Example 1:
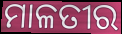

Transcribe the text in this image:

ମାଳତୀର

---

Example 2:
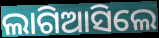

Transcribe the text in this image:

ଲାଗିଆସିଲେ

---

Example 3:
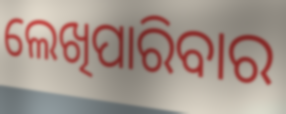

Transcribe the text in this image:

ଲେଖିପାରିବାର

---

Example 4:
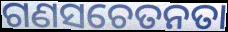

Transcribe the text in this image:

ଗଣସଚେତନତା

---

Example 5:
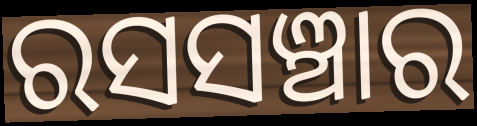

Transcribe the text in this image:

ରସସଞ୍ଚାର